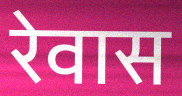
रेवास